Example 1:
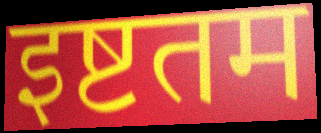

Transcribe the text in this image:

इष्टतम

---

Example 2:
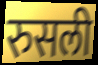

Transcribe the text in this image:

रुसली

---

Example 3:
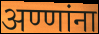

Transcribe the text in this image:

अण्णांना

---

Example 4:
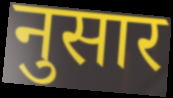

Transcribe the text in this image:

नुसार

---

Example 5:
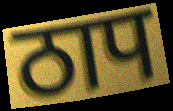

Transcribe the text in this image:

ठाप